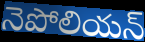
నెపోలియన్